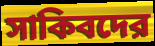
সাকিবদের